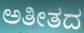
ಅತೀತದ